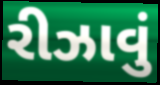
રીઝાવું